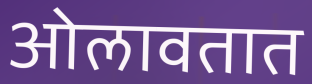
ओलावतात